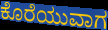
ಕೊರೆಯುವಾಗ